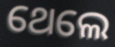
ଥେଲେ